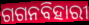
ଗଗନବିହାରୀ